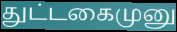
துட்டகைமுனு